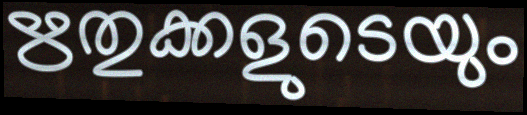
ഋതുക്കളുടെയും